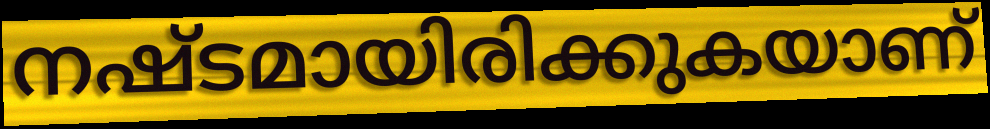
നഷ്ടമായിരിക്കുകയാണ്